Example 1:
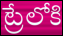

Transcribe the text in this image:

ట్రేలోకి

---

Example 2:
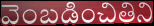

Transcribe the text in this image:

వెంబడించితిని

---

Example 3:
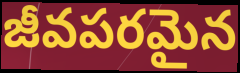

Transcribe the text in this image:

జీవపరమైన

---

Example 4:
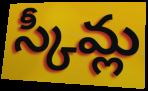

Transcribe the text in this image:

స్కీమ్ల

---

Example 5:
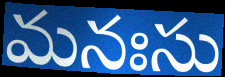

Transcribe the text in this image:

మనఃసు